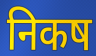
निकष